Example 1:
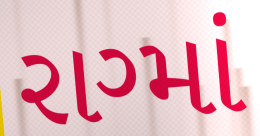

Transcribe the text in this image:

રાગ્માં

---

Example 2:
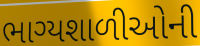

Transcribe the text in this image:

ભાગ્યશાળીઓની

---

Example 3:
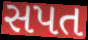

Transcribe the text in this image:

સપત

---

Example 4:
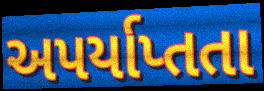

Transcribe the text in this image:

અપર્યાપ્તતા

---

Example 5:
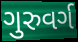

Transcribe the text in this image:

ગુરુવર્ગ